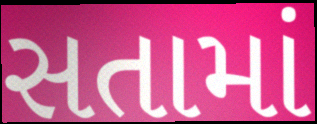
સતામાં